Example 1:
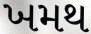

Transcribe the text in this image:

ખમથ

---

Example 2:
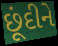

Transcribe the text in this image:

છૂંદીને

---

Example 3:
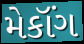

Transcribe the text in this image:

મેકૉંગ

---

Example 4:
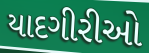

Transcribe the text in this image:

યાદગીરીઓ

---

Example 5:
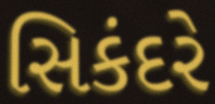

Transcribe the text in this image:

સિકંદરે